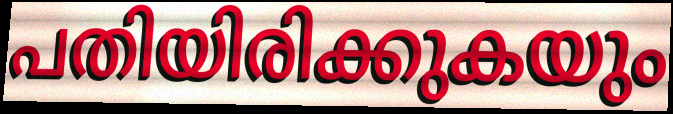
പതിയിരിക്കുകയും